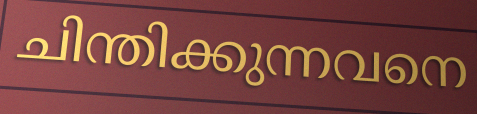
ചിന്തിക്കുന്നവനെ